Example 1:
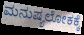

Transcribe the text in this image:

ಮನುಷ್ಯಲೋಕಕ್ಕೆ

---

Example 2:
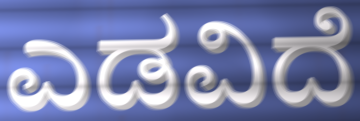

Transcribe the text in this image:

ಎಡವಿದೆ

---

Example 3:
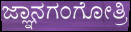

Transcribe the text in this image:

ಜ್ಞಾನಗಂಗೋತ್ರಿ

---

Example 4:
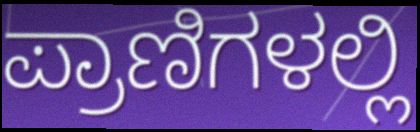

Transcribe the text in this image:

ಪ್ರಾಣಿಗಳಲ್ಲಿ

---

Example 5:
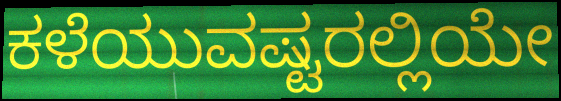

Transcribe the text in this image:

ಕಳೆಯುವಷ್ಟರಲ್ಲಿಯೇ